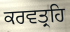
ਕਰਵਤ੍ਰਹਿ